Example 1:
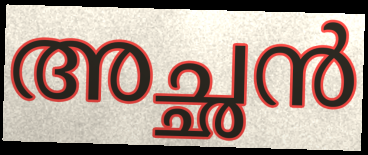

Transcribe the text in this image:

അച്ഛൻ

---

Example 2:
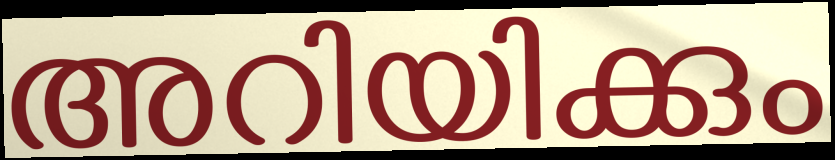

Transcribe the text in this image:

അറിയിക്കും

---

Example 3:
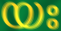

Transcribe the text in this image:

യഃ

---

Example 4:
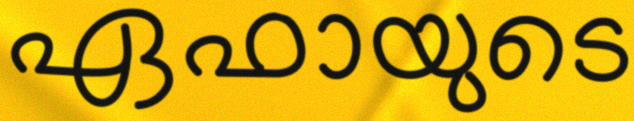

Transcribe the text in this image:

ഏഫായുടെ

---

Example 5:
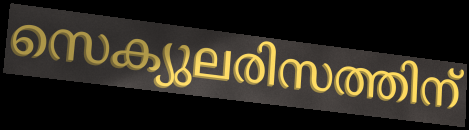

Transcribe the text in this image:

സെക്യുലരിസത്തിന്